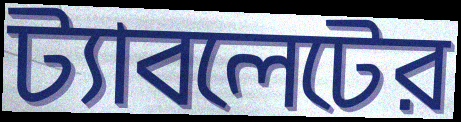
ট্যাবলেটের